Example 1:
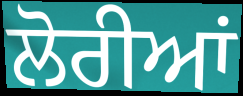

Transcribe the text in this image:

ਲੋਰੀਆਂ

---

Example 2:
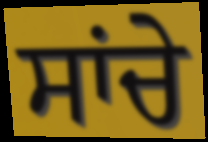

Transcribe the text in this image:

ਸਾਂਚੇ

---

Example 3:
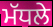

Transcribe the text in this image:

ਮੱਧਲੇ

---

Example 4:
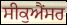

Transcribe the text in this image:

ਸੀਕੁਐਂਸਰ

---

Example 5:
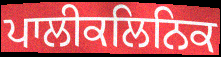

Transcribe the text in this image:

ਪਾਲੀਕਲਿਨਿਕ